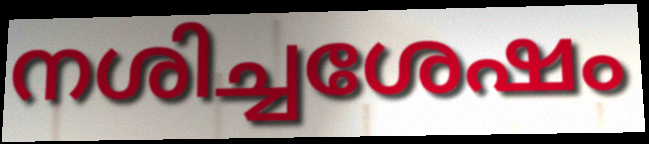
നശിച്ചശേഷം